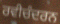
ਰਵੀਚੰਦਰਨ